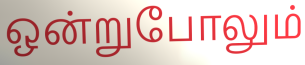
ஒன்றுபோலும்